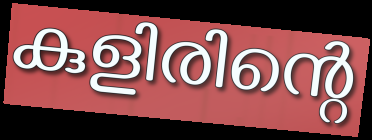
കുളിരിന്റെ